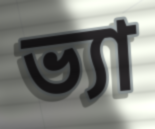
ভ্যা